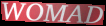
WOMAD